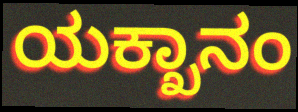
ಯಕ್ಖಾನಂ